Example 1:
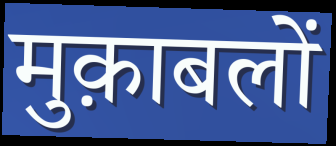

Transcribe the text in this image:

मुक़ाबलों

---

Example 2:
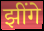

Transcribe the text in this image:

झींगे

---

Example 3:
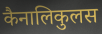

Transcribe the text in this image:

कैनालिकुलस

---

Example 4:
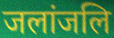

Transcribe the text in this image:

जलांजलि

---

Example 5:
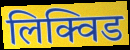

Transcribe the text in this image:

लिक्विड